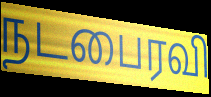
நடபைரவி